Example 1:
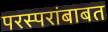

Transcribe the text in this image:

परस्परांबाबत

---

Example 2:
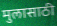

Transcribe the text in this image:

मुलासाठी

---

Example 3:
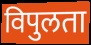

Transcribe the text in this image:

विपुलता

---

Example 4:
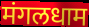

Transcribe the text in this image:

मंगलधाम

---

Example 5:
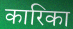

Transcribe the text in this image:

कारिका